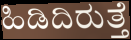
ಹಿಡಿದಿರುತ್ತೆ